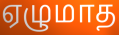
ஏழுமாத